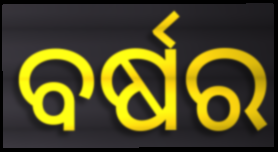
ବର୍ଷର